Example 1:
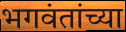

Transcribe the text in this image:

भगवंतांच्या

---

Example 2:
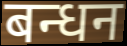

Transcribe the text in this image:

बन्धन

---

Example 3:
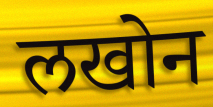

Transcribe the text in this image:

लखोन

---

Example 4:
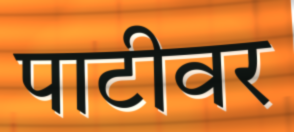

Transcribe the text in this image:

पाटीवर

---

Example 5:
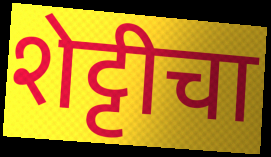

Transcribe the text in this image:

शेट्टीचा